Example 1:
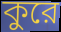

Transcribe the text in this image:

কুরে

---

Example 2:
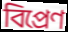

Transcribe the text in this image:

বিপ্রেণ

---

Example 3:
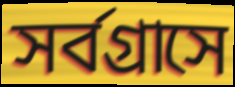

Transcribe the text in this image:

সর্বগ্রাসে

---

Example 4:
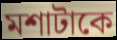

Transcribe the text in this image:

মশাটাকে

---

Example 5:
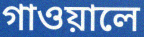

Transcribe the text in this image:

গাওয়ালে